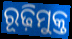
ରୂଢ଼ିମୁକ୍ତ